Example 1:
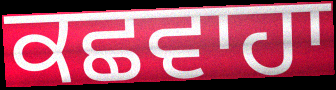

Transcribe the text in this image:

ਕਛਵਾਹਾ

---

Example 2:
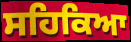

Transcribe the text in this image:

ਸਹਿਕਿਆ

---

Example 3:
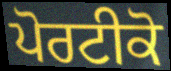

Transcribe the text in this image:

ਪੋਰਟੀਕੋ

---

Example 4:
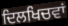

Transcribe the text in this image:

ਦਿਲਖਿਚਵਾਂ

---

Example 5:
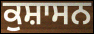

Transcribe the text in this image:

ਕੁਸ਼ਾਸਨ